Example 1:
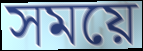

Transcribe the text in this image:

সময়ে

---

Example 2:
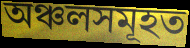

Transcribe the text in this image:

অঞ্চলসমূহত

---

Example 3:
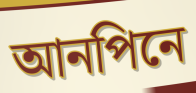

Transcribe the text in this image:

আনপিনে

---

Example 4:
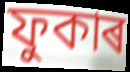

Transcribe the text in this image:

ফুকাৰ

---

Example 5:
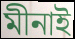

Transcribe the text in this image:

মীনাই